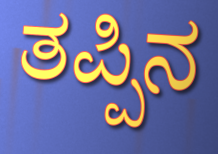
ತಪ್ಪಿನ